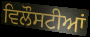
ਵਿਲੌਸਟੀਆਂ